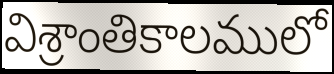
విశ్రాంతికాలములో